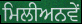
ਮਿਲੀਅਨਵੇਂ